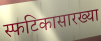
स्फटिकासारख्या